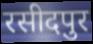
रसीदपुर